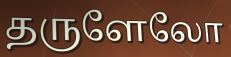
தருளேலோ